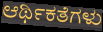
ಆರ್ಥಿಕತೆಗಳು